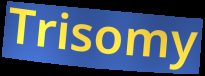
Trisomy